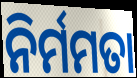
ନିର୍ମମତା